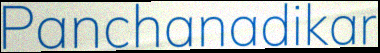
Panchanadikar